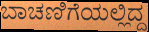
ಬಾಚಣಿಗೆಯಲ್ಲಿದ್ದ